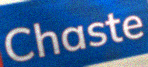
Chaste